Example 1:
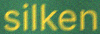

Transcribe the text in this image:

silken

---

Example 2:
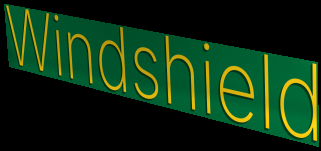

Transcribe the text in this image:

Windshield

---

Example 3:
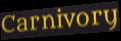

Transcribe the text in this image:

Carnivory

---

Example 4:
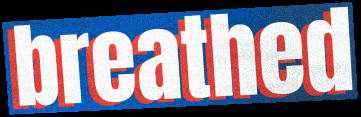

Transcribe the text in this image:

breathed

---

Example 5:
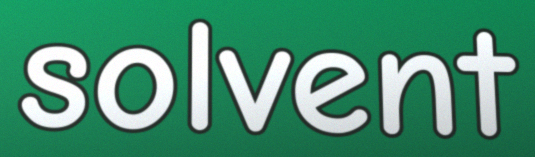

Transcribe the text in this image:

solvent